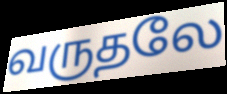
வருதலே